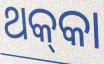
ଥକ୍‍କା